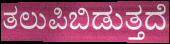
ತಲುಪಿಬಿಡುತ್ತದೆ